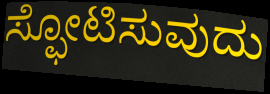
ಸ್ಫೋಟಿಸುವುದು